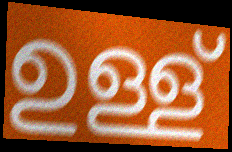
ഉള്ള്